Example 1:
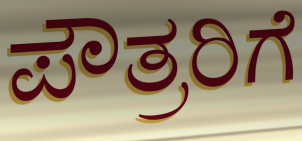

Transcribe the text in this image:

ಪೌತ್ರರಿಗೆ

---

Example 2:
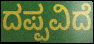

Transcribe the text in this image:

ದಪ್ಪವಿದೆ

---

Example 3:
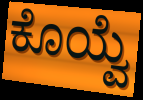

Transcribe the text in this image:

ಕೊಯ್ವೆ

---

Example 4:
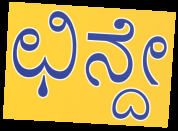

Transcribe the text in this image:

ಛಿನ್ದೇ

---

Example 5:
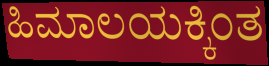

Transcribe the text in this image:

ಹಿಮಾಲಯಕ್ಕಿಂತ